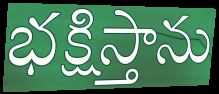
భక్షిస్తాను